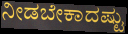
ನೀಡಬೇಕಾದಷ್ಟು